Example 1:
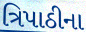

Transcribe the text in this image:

ત્રિપાઠીના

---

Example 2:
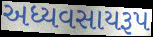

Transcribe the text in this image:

અધ્યવસાયરૂપ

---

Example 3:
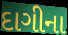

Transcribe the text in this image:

દાગીના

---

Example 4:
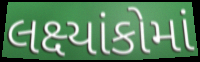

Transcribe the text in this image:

લક્ષ્યાંકોમાં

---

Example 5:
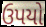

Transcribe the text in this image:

ઉપયો